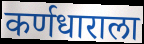
कर्णधाराला